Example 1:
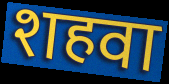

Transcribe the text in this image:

शहवा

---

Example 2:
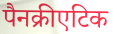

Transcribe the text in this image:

पैनक्रीएटिक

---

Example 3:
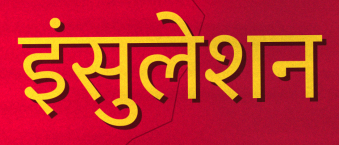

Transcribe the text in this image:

इंसुलेशन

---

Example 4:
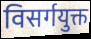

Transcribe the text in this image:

विसर्गयुक्त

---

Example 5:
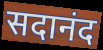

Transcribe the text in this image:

सदानंद